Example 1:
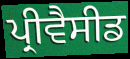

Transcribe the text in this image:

ਪ੍ਰੀਵੈਸੀਡ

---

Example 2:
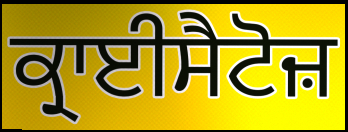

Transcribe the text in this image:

ਕ੍ਰਾਈਸੈਟੋਜ਼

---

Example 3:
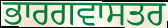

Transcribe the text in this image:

ਭਾਰਗਵਾਸਤਰ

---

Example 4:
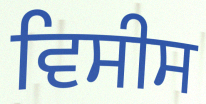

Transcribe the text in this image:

ਵਿਸੀਸ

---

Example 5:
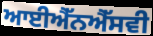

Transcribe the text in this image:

ਆਈਐੱਨਐੱਸਵੀ